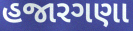
હજારગણા